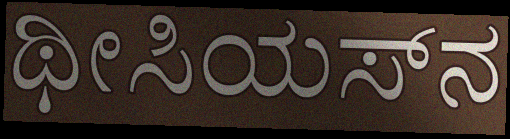
ಥೀಸಿಯಸ್‌ನ